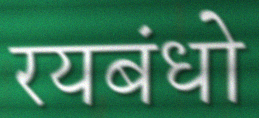
रयबंधो